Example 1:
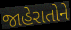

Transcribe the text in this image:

જાહેરાતોને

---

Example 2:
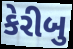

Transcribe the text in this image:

કેરીબુ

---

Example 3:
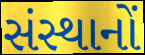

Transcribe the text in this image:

સંસ્થાનોં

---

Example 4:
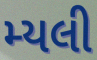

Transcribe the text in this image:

મ્યલી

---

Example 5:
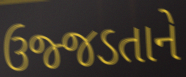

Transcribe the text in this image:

ઉજ્જડતાને